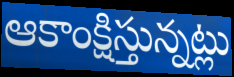
ఆకాంక్షిస్తున్నట్లు